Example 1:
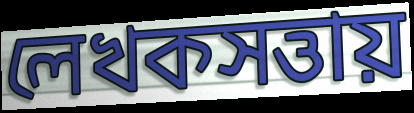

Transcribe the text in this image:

লেখকসত্তায়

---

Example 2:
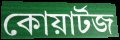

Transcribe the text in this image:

কোয়ার্টজ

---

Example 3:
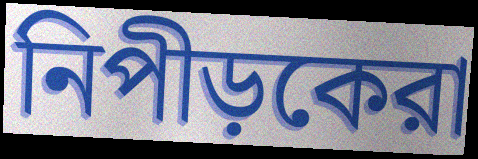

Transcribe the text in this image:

নিপীড়কেরা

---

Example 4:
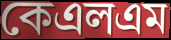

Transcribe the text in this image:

কেএলএম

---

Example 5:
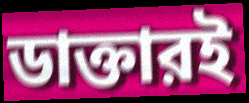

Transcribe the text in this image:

ডাক্তারই